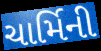
ચાર્મિની